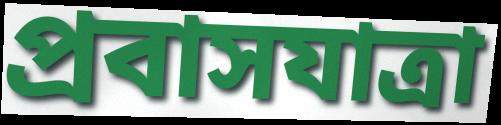
প্রবাসযাত্রা